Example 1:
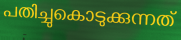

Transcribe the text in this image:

പതിച്ചുകൊടുക്കുന്നത്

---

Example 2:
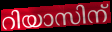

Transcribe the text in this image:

റിയാസിന്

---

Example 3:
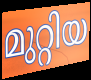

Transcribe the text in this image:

മുറ്റിയ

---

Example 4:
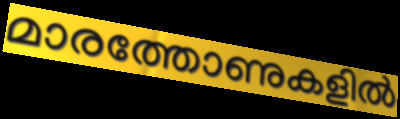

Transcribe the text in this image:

മാരത്തോണുകളിൽ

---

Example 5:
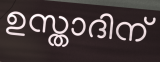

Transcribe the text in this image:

ഉസ്താദിന്